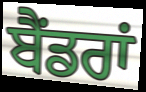
ਬੈਂਡਰਾਂ